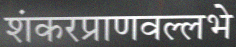
शंकरप्राणवल्लभे